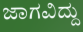
ಜಾಗವಿದ್ದು